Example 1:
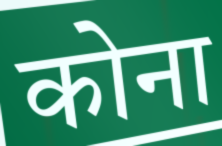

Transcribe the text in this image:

कोना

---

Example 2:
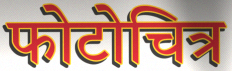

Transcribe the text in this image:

फोटोचित्र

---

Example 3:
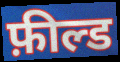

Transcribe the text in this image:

फ़ील्ड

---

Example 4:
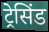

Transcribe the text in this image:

ट्रेसिंड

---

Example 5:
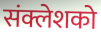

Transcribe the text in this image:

संक्लेशको